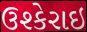
ઉશ્કેરાઇ